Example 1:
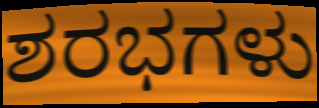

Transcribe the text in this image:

ಶರಭಗಳು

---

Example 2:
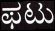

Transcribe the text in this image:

ಫಟು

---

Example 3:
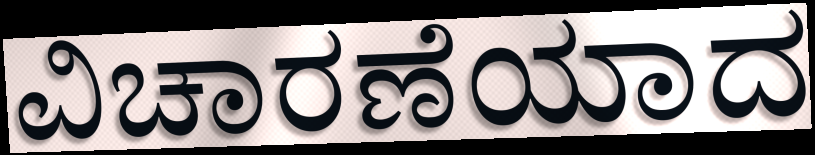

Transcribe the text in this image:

ವಿಚಾರಣೆಯಾದ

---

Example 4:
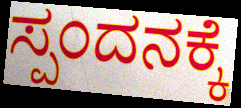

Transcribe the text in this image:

ಸ್ಪಂದನಕ್ಕೆ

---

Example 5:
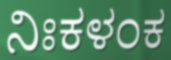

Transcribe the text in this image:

ನಿಃಕಳಂಕ